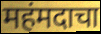
महंमदाचा